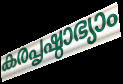
കരപൃഷ്ഠാഭ്യാം